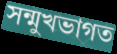
সন্মুখভাগত